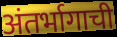
अंतर्भागाची